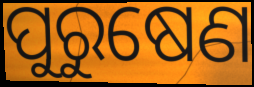
ପୁରୁଷେଣ